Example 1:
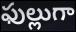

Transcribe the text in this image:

ఫుల్లుగా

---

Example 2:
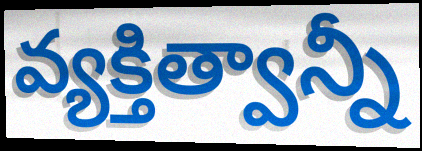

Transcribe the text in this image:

వ్యక్తిత్వాన్నీ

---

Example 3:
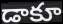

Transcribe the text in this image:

డాకూ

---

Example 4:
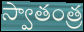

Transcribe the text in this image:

స్వాతంత్ర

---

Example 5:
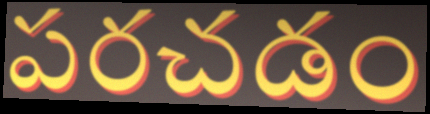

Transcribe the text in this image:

పరచడం